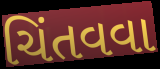
ચિંતવવા